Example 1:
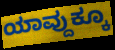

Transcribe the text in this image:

ಯಾವ್ದುಕ್ಕೂ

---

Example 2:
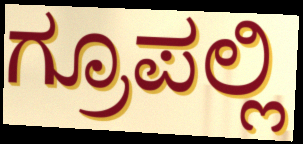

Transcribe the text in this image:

ಗ್ರೂಪಲ್ಲಿ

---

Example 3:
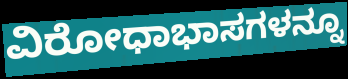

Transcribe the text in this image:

ವಿರೋಧಾಭಾಸಗಳನ್ನೂ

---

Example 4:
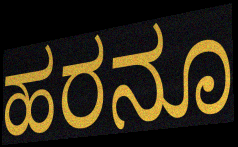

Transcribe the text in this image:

ಹರನೂ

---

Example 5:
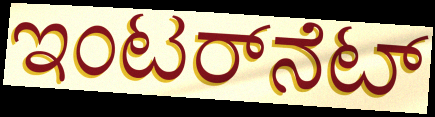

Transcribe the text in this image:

ಇಂಟರ್‌ನೆಟ್